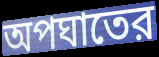
অপঘাতের